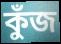
কুঁজ